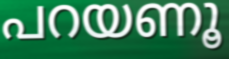
പറയണൂ